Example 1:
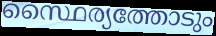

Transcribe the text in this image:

സ്ഥൈര്യത്തോടും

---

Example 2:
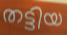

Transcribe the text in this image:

തട്ടിയ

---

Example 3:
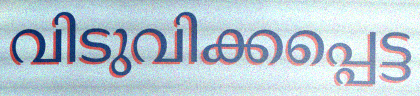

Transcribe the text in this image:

വിടുവിക്കപ്പെട്ട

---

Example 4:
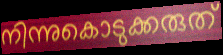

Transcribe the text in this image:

നിന്നുകൊടുക്കരുത്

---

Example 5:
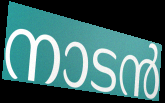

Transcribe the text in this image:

നാടൻ